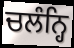
ਚਲੰਨ੍ਹ੍ਹਿ